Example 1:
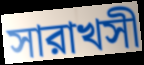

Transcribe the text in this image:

সারাখসী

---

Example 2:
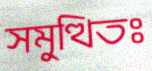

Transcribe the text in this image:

সমুত্থিতঃ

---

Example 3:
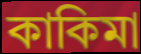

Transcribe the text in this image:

কাকিমা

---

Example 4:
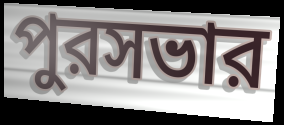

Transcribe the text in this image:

পুরসভার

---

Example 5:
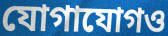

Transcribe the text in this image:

যোগাযোগও